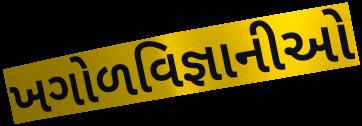
ખગોળવિજ્ઞાનીઓ